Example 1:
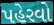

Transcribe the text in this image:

પહેરવો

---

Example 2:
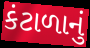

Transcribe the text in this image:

કંટાળાનું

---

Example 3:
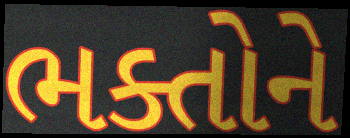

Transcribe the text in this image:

ભક્તોને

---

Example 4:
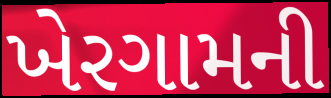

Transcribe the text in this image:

ખેરગામની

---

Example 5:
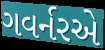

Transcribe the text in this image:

ગવર્નરએ